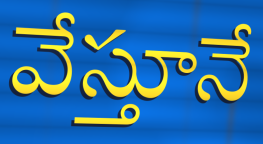
వేస్తూనే